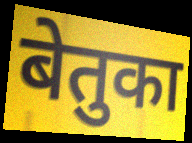
बेतुका